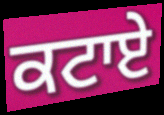
ਕਟਾਏ